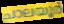
ചാലയൂർ